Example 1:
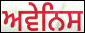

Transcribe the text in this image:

ਅਵੇਨਿਸ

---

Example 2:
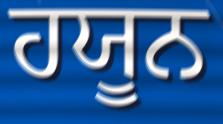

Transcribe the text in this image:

ਹਯੂਨ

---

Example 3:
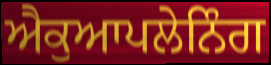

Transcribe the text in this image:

ਐਕੁਆਪਲੇਨਿੰਗ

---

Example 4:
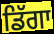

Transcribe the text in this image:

ਡਿੱਗਾ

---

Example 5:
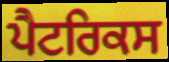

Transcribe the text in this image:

ਪੈਟਰਿਕਸ